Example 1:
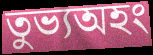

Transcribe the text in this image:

তুভ্যঅহং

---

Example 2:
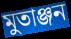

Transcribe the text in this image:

মুতাঞ্জন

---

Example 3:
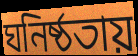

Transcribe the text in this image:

ঘনিষ্ঠতায়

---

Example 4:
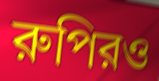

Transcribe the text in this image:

রুপিরও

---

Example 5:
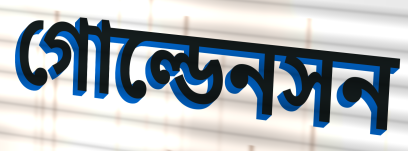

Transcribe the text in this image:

গোল্ডেনসন